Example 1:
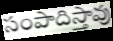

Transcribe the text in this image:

సంపాదిస్తావు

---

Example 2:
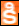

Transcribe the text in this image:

కి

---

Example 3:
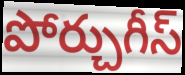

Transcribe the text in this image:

పోర్చుగీస్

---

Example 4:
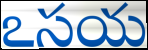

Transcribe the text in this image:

ఽసయ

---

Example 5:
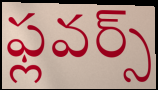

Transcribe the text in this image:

ఫ్లవర్స్